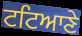
ਟਟਿਆਣੇ